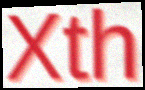
Xth